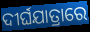
ଦୀର୍ଘଯାତ୍ରାରେ